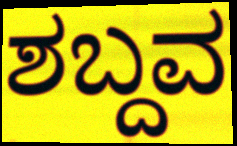
ಶಬ್ದವ